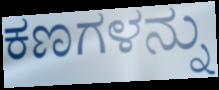
ಕಣಗಳನ್ನು